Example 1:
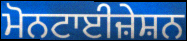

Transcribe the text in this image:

ਮੋਨਟਾਈਜ਼ੇਸ਼ਨ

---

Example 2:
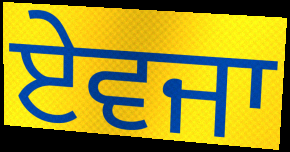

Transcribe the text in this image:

ਏਵਜਾ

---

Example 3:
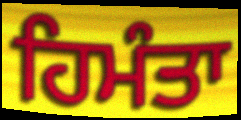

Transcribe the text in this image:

ਹਿਮੰਤਾ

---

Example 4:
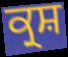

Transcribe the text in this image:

ਕ੍ਰਸ਼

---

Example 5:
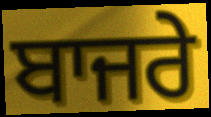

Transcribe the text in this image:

ਬਾਜਰੇ